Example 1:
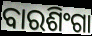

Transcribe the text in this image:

ବାରଶିଂଗା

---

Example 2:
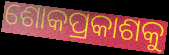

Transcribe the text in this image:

ଶୋକପ୍ରକାଶକୁ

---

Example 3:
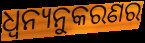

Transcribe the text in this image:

ଧ୍ବନ୍ୟନୁକରଣର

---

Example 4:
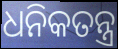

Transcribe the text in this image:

ଧନିକତନ୍ତ୍ର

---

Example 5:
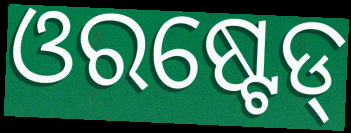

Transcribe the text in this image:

ଓରଷ୍ଟେଡ୍